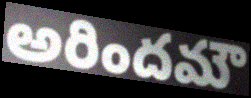
అరిందమౌ